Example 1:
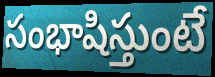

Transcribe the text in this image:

సంభాషిస్తుంటే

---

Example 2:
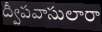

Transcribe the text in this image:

ద్వీపవాసులారా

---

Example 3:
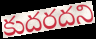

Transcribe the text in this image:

కుదరదని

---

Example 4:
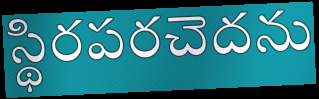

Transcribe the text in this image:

స్థిరపరచెదను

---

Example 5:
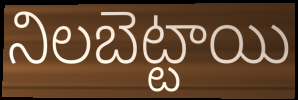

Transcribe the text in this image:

నిలబెట్టాయి